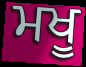
ਮਖੂ